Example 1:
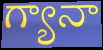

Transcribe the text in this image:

గ్యానా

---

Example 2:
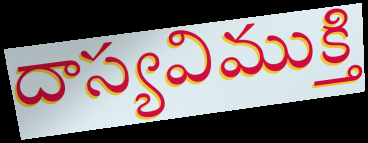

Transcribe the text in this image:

దాస్యవిముక్తి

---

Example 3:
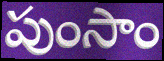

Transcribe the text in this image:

పుంసాం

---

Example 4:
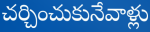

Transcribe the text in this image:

చర్చించుకునేవాళ్లు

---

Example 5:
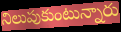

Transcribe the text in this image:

నిలుపుకుంటున్నారు